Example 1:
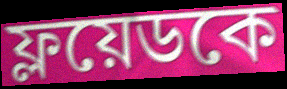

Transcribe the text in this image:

ফ্লয়েডকে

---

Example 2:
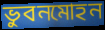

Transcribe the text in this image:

ভুবনমোহন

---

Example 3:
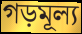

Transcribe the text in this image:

গড়মূল্য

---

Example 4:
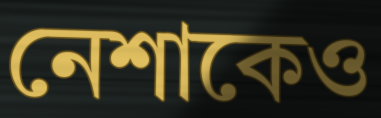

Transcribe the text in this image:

নেশাকেও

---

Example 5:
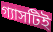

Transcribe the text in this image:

গ্যাসটিই